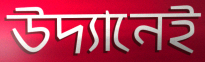
উদ্যানেই